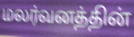
மலர்வனத்தின்